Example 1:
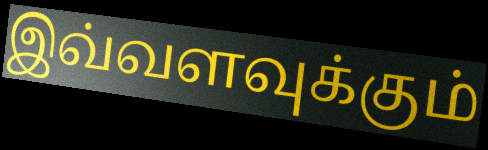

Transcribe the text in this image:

இவ்வளவுக்கும்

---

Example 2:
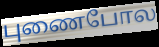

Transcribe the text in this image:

புணைபோல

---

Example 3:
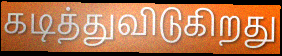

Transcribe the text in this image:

கடித்துவிடுகிறது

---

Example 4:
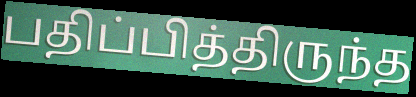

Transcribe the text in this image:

பதிப்பித்திருந்த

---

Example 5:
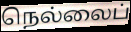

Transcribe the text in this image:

நெல்லைப்